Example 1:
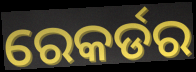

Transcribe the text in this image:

ରେକର୍ଡର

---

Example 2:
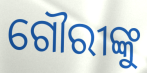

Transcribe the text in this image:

ଗୌରୀଙ୍କୁ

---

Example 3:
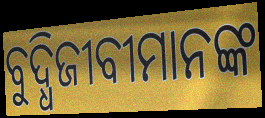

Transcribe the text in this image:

ବୁଦ୍ଧିଜୀବୀମାନଙ୍କ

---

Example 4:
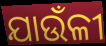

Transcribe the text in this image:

ଯାଉଁଳୀ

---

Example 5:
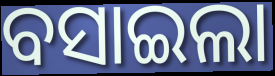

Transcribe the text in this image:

ବସାଇଲା